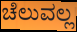
ಚೆಲುವಲ್ಲ